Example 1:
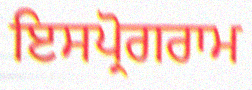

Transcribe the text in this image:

ਇਸਪ੍ਰੋਗਰਾਮ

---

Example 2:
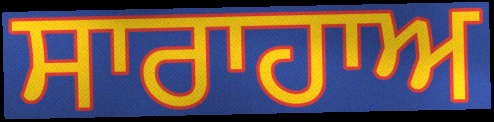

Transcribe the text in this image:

ਸਾਰਾਹਾਅ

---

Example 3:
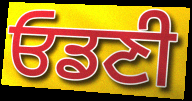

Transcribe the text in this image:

ਓਡਣੀ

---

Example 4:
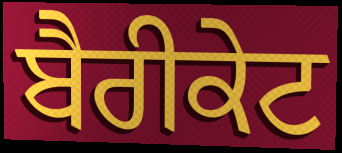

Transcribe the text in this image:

ਬੈਰੀਕੇਟ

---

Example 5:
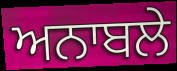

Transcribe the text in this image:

ਅਨਾਬਲੇ